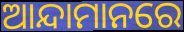
ଆନ୍ଦାମାନରେ